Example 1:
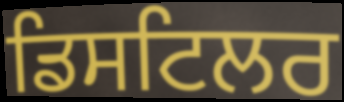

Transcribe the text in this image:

ਡਿਸਟਿਲਰ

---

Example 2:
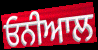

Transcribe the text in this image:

ਓਨੀਆਲ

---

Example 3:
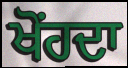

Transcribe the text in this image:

ਖੋਂਹਦਾ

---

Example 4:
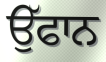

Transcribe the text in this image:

ਉੱਫਾਨ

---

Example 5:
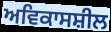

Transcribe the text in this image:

ਅਵਿਕਾਸਸ਼ੀਲ